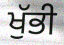
ਖੁੱਭੀ